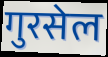
गुरसेल